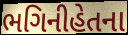
ભગિનીહેતના